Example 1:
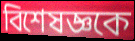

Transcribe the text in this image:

বিশেষজ্ঞকে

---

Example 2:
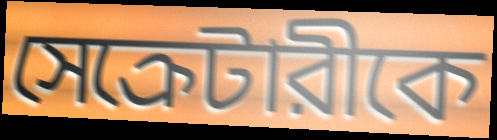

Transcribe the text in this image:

সেক্রেটারীকে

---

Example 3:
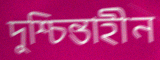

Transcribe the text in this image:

দুশ্চিন্তাহীন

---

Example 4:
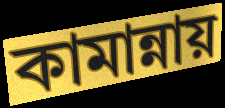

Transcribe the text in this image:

কামান্নায়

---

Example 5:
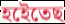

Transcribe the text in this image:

হইেতেছ